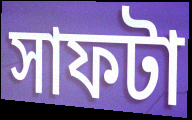
সাফটা